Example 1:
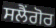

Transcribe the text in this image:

ਸਲੈਂਗੋਰ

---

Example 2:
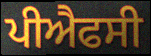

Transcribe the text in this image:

ਪੀਐਫਸੀ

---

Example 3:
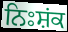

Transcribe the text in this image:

ਨਿਃਸ਼ਂਕ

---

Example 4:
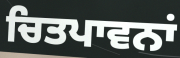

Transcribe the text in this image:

ਚਿਤਪਾਵਨਾਂ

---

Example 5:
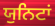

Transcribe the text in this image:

ਯੁਨਿਟਾਂ